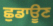
ਛੁਡਾਊਣ